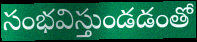
సంభవిస్తుండడంతో